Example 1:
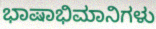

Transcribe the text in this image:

ಭಾಷಾಭಿಮಾನಿಗಳು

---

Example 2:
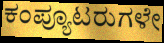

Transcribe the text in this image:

ಕಂಪ್ಯೂಟರುಗಳೇ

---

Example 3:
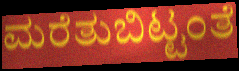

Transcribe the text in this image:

ಮರೆತುಬಿಟ್ಟಂತೆ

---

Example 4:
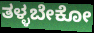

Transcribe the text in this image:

ತಳ್ಳಬೇಕೋ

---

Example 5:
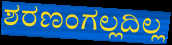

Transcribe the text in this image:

ಶರಣಂಗಲ್ಲದಿಲ್ಲ